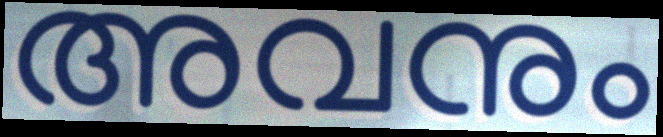
അവനും